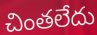
చింతలేదు